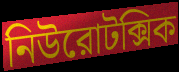
নিউরোটক্সিক